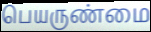
பெயருண்மை